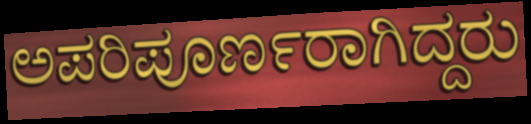
ಅಪರಿಪೂರ್ಣರಾಗಿದ್ದರು